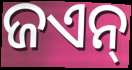
ଜଏନ୍